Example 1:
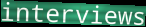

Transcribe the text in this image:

interviews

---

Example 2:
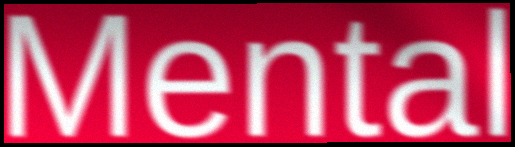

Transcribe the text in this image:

Mental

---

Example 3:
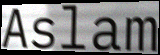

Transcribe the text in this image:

Aslam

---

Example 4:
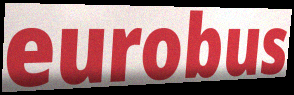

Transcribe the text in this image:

eurobus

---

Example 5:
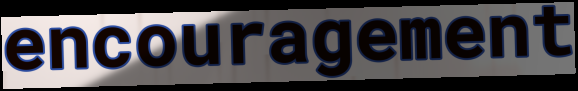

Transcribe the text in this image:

encouragement